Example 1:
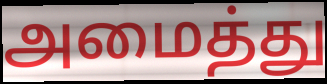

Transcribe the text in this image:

அமைத்து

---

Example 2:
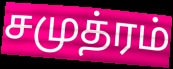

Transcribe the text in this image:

சமுத்ரம்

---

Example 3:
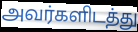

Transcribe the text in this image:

அவர்களிடத்து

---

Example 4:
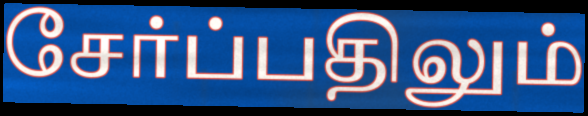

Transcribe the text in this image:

சேர்ப்பதிலும்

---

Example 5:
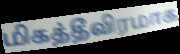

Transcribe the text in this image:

மிகத்தீவிரமாக